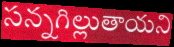
సన్నగిల్లుతాయని